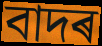
বাদৰ